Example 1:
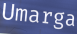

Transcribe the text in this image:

Umarga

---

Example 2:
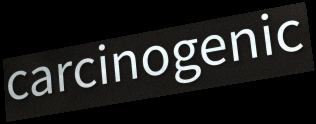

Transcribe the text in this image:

carcinogenic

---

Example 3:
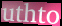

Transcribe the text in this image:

uthto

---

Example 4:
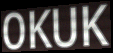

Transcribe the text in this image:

OKUK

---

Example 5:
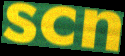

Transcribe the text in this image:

scn